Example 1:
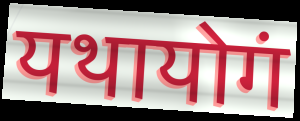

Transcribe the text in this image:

यथायोगं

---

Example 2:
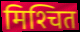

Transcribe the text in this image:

मिश्चित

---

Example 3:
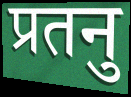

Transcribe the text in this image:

प्रतनु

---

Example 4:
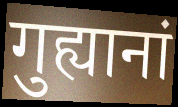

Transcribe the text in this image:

गुह्यानां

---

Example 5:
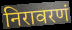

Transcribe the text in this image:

निरावरणं